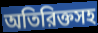
অতিরিক্তসহ